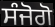
ਸੰਜੋਗੋ